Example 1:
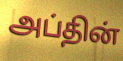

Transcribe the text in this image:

அப்தின்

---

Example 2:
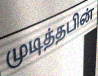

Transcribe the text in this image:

முடித்தபின்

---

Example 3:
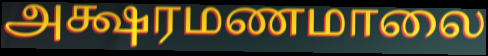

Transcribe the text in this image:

அக்ஷரமணமாலை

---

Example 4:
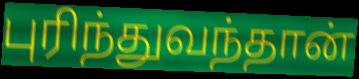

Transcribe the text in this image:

புரிந்துவந்தான்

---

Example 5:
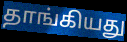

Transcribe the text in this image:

தாங்கியது